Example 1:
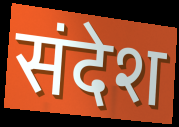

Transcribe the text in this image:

संदेश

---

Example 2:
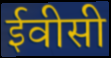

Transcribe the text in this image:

ईवीसी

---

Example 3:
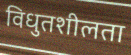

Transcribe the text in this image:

विधुतशीलता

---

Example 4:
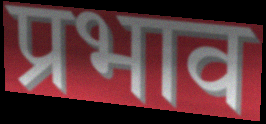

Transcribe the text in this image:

प्रभाव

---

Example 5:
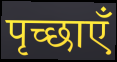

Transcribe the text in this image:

पृच्छाएँ